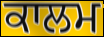
ਕਾਲਮ